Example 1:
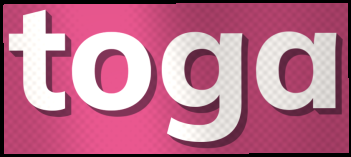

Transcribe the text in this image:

toga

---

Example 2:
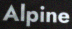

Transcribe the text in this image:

Alpine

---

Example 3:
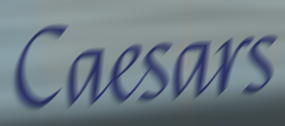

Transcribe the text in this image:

Caesars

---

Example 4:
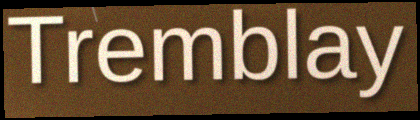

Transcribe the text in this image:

Tremblay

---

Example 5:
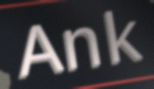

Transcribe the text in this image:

Ank